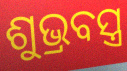
ଶୁଭ୍ରବସ୍ତ୍ର